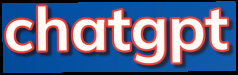
chatgpt